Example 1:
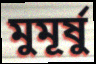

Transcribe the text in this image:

মুমূৰ্ষু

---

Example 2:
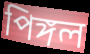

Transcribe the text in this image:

পিঙ্গল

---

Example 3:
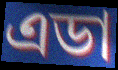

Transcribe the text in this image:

এডা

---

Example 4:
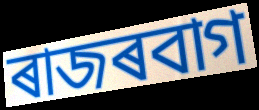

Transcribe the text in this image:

ৰাজৰবাগ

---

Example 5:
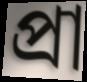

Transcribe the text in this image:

প্ৰা